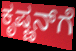
ಕೃಷ್ಣನ್‌ಗೆ